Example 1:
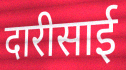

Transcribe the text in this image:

दारीसाई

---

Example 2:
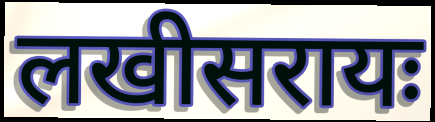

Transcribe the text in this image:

लखीसरायः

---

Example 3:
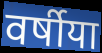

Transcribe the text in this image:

वर्षीया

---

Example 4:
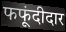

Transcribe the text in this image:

फफूंदीदार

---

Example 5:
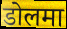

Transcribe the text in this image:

डोलमा